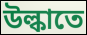
উল্কাতে